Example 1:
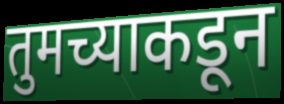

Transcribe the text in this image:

तुमच्याकडून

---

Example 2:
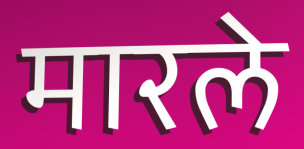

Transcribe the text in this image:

मारले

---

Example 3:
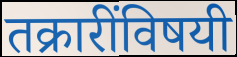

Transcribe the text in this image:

तक्रारींविषयी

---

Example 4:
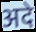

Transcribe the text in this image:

अदे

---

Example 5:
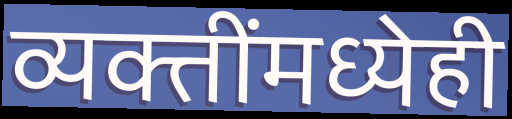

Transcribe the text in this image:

व्यक्तींमध्येही